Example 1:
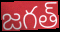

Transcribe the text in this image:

జగత్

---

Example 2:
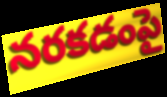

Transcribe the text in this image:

నరకడంపై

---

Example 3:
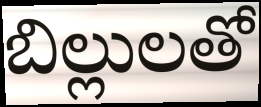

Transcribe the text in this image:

బిల్లులతో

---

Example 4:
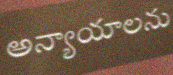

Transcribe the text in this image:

అన్యాయాలను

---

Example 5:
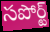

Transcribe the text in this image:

సపోర్ట్